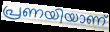
പ്രണയിയാണ്